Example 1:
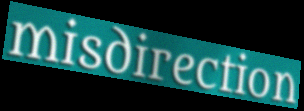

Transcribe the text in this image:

misdirection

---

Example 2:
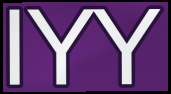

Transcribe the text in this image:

IYY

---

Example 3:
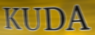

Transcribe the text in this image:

KUDA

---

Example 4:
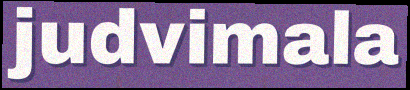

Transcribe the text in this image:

judvimala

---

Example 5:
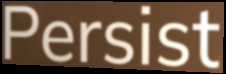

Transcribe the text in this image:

Persist